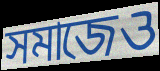
সমাজেও